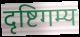
दृष्टिगम्य